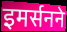
इमर्सनने